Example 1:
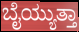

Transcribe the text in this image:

ಬೈಯ್ಯುತ್ತಾ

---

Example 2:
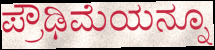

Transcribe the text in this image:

ಪ್ರೌಢಿಮೆಯನ್ನೂ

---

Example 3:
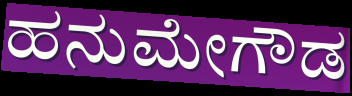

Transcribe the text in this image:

ಹನುಮೇಗೌಡ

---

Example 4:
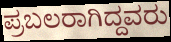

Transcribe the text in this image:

ಪ್ರಬಲರಾಗಿದ್ದವರು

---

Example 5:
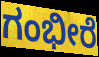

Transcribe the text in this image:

ಗಂಭೀರೆ